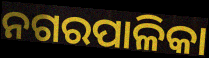
ନଗରପାଳିକା